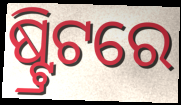
ଷ୍ଟ୍ରିଟରେ